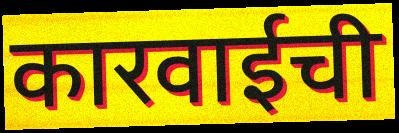
कारवाईची